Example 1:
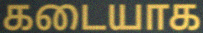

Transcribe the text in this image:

கடையாக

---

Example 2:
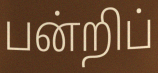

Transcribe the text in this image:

பன்றிப்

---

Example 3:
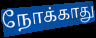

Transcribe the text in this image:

நோக்காது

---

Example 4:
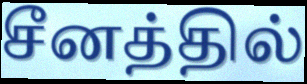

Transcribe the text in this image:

சீனத்தில்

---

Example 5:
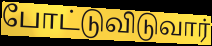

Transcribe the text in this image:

போட்டுவிடுவார்